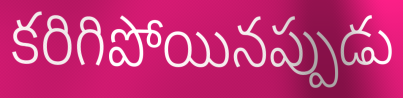
కరిగిపోయినప్పుడు